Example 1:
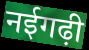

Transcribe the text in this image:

नईगढ़ी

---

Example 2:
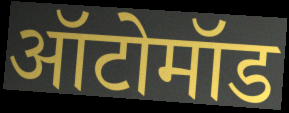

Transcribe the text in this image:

ऑटोमॉड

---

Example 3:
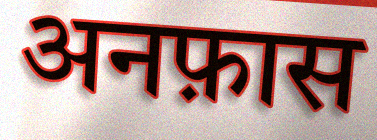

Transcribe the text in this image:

अनफ़ास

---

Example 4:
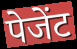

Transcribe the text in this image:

पेजेंट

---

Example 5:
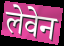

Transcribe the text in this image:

लेवेन